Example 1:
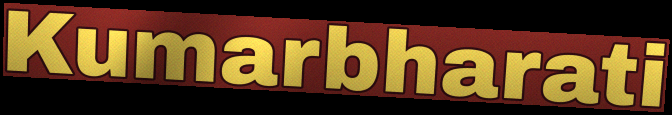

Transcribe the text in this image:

Kumarbharati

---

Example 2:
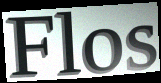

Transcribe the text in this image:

Flos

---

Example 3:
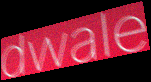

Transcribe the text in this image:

dwale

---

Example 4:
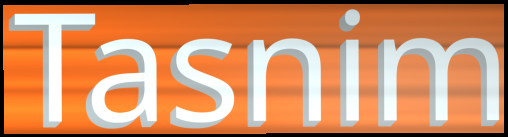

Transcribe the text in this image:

Tasnim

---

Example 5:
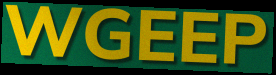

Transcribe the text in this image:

WGEEP